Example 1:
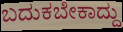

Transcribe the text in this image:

ಬದುಕಬೇಕಾದ್ದು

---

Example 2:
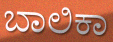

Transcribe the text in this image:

ಬಾಲಿಕಾ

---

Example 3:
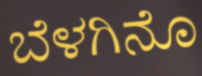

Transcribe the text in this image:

ಬೆಳಗಿನೊ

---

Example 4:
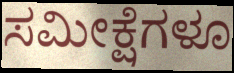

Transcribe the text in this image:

ಸಮೀಕ್ಷೆಗಳೂ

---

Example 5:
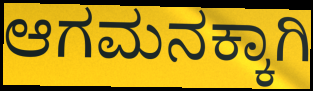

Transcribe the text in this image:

ಆಗಮನಕ್ಕಾಗಿ